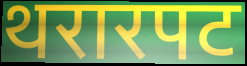
थरारपट